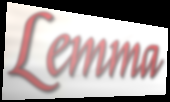
Lemma